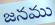
జనము